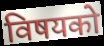
विषयको